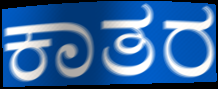
ಕಾತರ